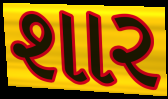
શાર